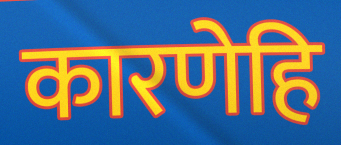
कारणेहि